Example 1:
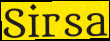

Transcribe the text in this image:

Sirsa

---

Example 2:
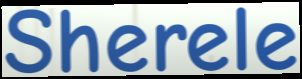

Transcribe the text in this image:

Sherele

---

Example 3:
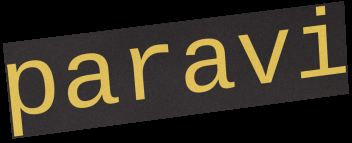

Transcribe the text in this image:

paravi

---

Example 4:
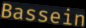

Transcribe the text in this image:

Bassein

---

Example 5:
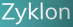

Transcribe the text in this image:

Zyklon